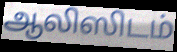
ஆலிஸிடம்